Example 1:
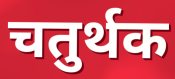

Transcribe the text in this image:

चतुर्थक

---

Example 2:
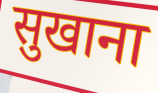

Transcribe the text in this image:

सुखाना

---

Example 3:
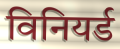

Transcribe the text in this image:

विनियर्ड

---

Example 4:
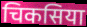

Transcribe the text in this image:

चिकसिया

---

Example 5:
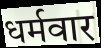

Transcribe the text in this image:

धर्मवार